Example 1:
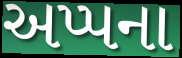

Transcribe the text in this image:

અપ્પના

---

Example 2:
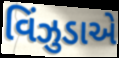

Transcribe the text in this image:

વિંઝુડાએ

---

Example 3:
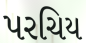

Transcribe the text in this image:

પરચિય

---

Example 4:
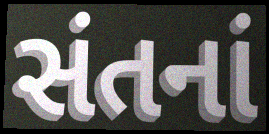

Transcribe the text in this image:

સંતનાં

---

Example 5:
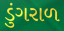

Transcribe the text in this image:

ડુંગરાળ